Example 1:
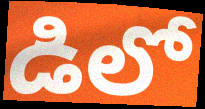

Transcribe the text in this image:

డిలో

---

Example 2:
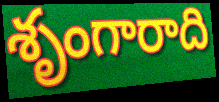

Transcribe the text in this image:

శృంగారాది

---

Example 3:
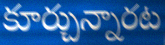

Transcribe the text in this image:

కూర్చున్నారట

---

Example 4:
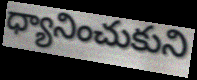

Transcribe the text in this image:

ధ్యానించుకుని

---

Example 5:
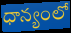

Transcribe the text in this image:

ధాన్యంలో